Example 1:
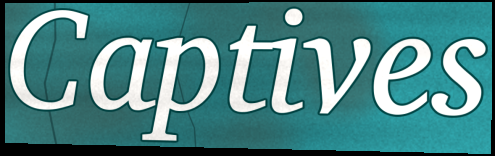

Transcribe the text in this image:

Captives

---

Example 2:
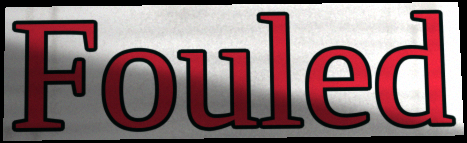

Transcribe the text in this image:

Fouled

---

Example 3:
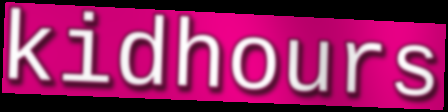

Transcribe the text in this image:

kidhours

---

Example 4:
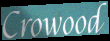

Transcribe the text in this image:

Crowood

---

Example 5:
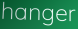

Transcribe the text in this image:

hanger